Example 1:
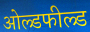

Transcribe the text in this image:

ओल्डफील्ड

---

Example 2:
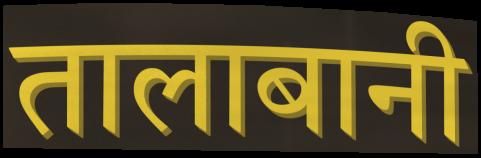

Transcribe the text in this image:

तालाबानी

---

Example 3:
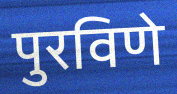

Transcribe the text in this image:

पुरविणे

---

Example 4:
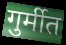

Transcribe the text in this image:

गुर्मीत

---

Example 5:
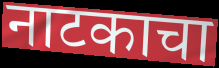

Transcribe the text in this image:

नाटकाचा